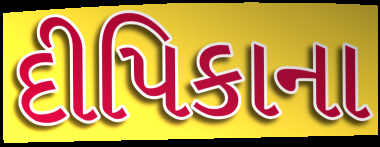
દીપિકાના